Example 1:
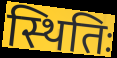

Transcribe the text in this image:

स्थितिः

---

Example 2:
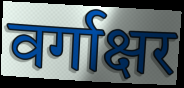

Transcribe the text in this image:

वर्गाक्षर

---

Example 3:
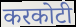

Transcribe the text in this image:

करकोटी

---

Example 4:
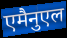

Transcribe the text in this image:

एमैनुएल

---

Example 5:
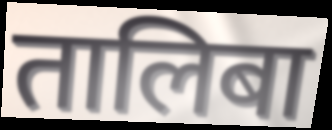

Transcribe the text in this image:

तालिबा